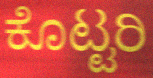
ಕೊಟ್ಟರಿ